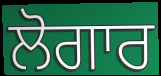
ਲੋਗਾਰ